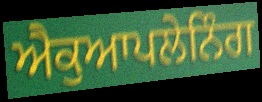
ਐਕੁਆਪਲੇਨਿੰਗ